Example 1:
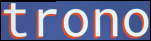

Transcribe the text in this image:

trono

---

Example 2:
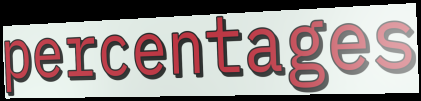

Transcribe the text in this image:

percentages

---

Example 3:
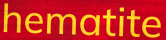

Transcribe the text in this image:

hematite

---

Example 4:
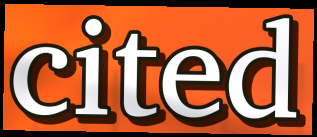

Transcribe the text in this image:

cited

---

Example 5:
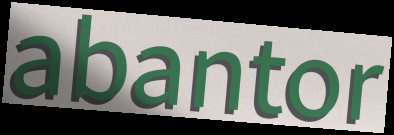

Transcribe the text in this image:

abantor